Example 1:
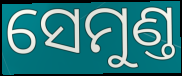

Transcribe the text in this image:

ସେମୁଣ୍ତ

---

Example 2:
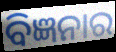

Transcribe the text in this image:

ବିଜ୍ଞନାର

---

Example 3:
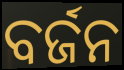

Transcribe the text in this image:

ବର୍ଜନ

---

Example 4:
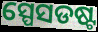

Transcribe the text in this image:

ସ୍ପେସଡଷ୍ଟ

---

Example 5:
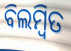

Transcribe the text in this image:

ବିଲମ୍ବିତ